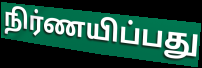
நிர்ணயிப்பது